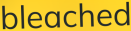
bleached